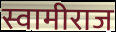
स्वामीराज